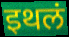
इथलं